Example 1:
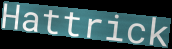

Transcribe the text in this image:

Hattrick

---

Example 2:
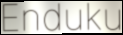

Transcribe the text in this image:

Enduku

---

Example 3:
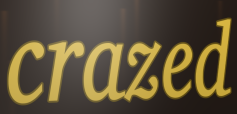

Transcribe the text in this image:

crazed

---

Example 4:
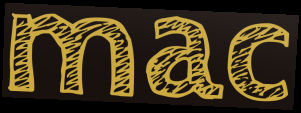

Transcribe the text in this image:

mac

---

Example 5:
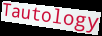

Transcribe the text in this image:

Tautology